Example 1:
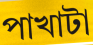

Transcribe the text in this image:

পাখাটা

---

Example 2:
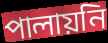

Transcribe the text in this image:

পালায়নি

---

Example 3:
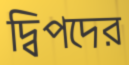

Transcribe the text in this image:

দ্বিপদের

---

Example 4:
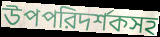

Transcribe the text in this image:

উপপরিদর্শকসহ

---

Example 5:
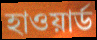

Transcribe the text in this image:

হাওয়ার্ড